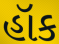
હૉક